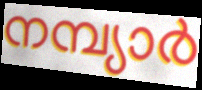
നമ്പ്യാർ